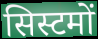
सिस्टमों